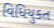
વિધિયુકત